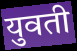
युवती